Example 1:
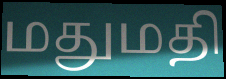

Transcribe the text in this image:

மதுமதி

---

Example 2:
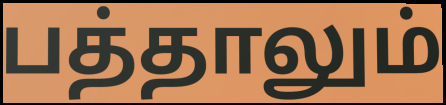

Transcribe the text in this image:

பத்தாலும்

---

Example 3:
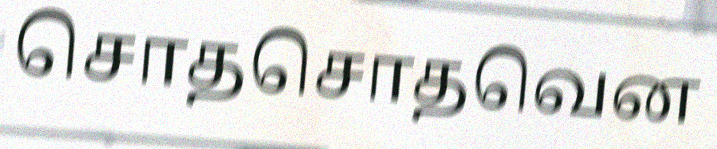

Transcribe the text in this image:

சொதசொதவென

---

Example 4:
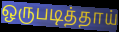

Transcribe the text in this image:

ஒருபடித்தாய்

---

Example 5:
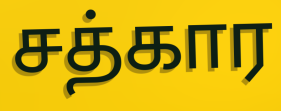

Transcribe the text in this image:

சத்கார